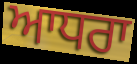
ਆਧਰਾ